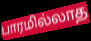
பாரமில்லாத